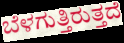
ಬೆಳಗುತ್ತಿರುತ್ತದೆ